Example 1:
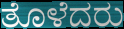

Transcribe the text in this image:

ತೊಳೆದರು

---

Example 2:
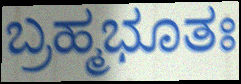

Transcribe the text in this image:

ಬ್ರಹ್ಮಭೂತಃ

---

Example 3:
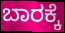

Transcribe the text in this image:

ಬಾರಕ್ಕೆ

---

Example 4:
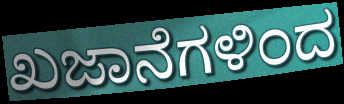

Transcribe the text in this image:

ಖಜಾನೆಗಳಿಂದ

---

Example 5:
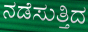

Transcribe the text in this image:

ನಡೆಸುತ್ತಿದ